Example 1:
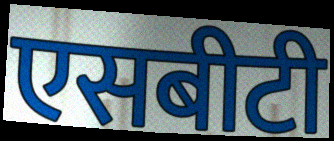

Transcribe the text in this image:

एसबीटी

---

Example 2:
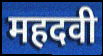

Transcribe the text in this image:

महदवी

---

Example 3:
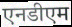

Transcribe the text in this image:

एनडीएम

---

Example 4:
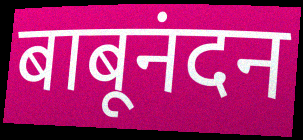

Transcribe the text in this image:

बाबूनंदन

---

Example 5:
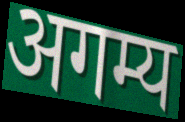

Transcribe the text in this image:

अगम्य